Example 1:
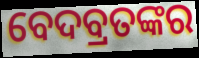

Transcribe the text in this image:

ବେଦବ୍ରତଙ୍କର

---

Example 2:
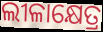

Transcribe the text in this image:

ଲୀଳାକ୍ଷେତ୍ର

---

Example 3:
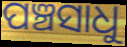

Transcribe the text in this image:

ପଞ୍ଚସାଧୁ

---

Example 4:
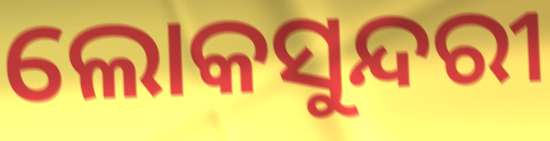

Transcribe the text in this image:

ଲୋକସୁନ୍ଦରୀ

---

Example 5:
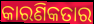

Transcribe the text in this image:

କାରଣିକତାର